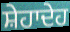
ਸ਼ੇਹਾਦੇਹ